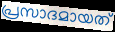
പ്രസാദമായത്